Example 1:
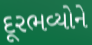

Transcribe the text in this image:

દૂરભવ્યોને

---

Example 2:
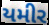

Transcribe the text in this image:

યમીર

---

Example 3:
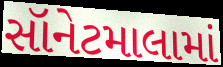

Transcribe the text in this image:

સૉનેટમાલામાં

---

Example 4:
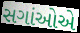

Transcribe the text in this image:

સગાંઓએ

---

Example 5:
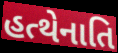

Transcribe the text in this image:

હત્થેનાતિ